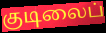
குடிலைப்